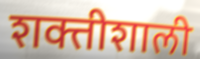
शक्तीशाली